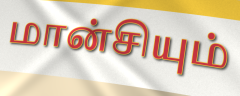
மான்சியும்